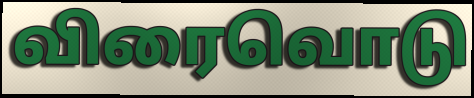
விரைவொடு